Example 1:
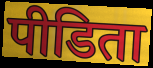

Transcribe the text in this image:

पीडिता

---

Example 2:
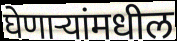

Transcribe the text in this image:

घेणाऱ्यांमधील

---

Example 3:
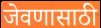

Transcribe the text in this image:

जेवणासाठी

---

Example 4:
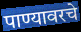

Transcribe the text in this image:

पाण्यावरचे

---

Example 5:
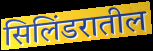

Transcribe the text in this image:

सिलिंडरातील